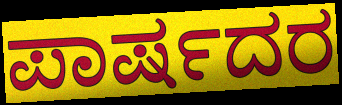
ಪಾರ್ಷದರ